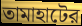
তামাহাটের